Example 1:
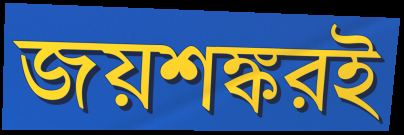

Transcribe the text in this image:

জয়শঙ্করই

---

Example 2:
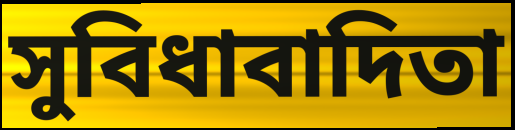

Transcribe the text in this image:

সুবিধাবাদিতা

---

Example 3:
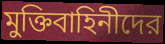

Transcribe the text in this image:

মুক্তিবাহিনীদের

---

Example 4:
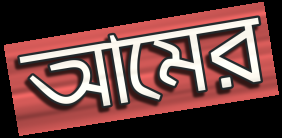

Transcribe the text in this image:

আমের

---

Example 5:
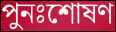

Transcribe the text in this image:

পুনঃশোষণ